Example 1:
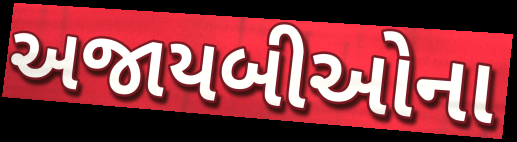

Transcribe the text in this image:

અજાયબીઓના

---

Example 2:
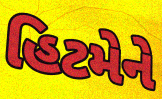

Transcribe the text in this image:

હિટમેને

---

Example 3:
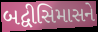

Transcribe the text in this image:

બદ્વીસિમાસને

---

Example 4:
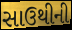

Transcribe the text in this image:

સાઉથીની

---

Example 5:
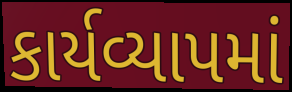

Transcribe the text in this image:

કાર્યવ્યાપમાં